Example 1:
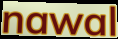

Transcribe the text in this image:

nawal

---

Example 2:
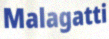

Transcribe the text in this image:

Malagatti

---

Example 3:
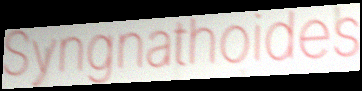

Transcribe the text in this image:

Syngnathoides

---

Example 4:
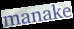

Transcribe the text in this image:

manake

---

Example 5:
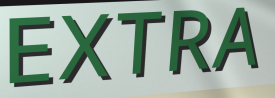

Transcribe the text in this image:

EXTRA